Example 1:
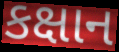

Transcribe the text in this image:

કક્ષાન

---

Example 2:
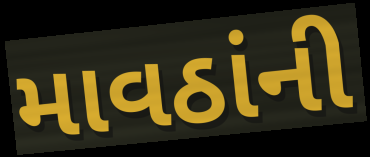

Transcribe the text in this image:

માવઠાંની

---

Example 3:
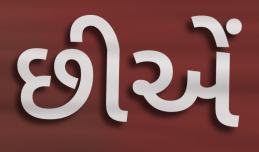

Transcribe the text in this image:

છીએં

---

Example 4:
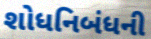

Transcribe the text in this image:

શોધનિબંધની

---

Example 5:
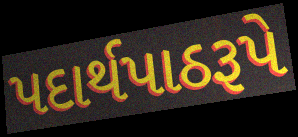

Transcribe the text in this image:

પદાર્થપાઠરૂપે